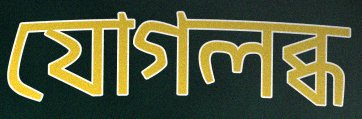
যোগলব্ধ